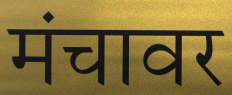
मंचावर